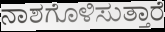
ನಾಶಗೊಳಿಸುತ್ತಾರೆ